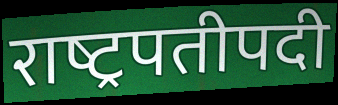
राष्ट्रपतीपदी